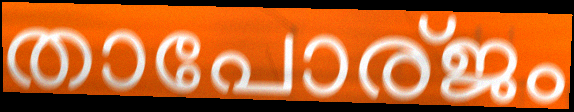
താപോര്ജം